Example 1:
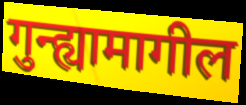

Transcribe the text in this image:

गुन्ह्यामागील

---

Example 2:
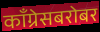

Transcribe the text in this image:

काँग्रेसबरोबर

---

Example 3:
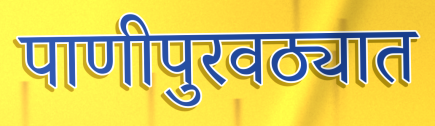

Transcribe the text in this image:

पाणीपुरवठ्यात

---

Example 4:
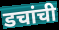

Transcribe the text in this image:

डचांची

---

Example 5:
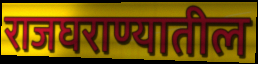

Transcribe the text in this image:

राजघराण्यातील